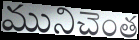
మునిచెంత